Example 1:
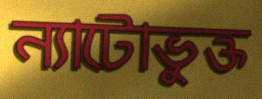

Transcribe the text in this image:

ন্যাটোভুক্ত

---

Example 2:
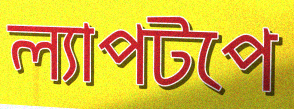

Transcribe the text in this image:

ল্যাপটপে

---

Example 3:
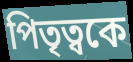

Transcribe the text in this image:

পিতৃত্বকে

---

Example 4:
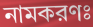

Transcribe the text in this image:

নামকরণঃ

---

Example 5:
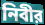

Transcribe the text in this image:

নিবীর